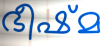
ഭീഷ്മ